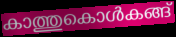
കാത്തുകൊൾകങ്ങ്